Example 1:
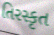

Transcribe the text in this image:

તિરસ્કૃત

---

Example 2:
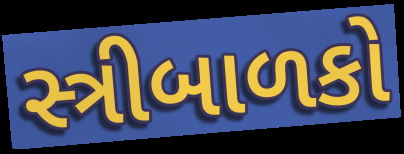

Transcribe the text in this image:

સ્ત્રીબાળકો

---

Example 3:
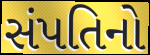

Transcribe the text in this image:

સંપતિનો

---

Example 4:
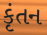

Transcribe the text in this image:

કૃંતન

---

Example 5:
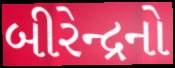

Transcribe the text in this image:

બીરેન્દ્રનો